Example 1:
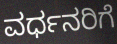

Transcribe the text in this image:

ವರ್ಧನರಿಗೆ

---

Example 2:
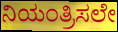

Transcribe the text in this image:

ನಿಯಂತ್ರಿಸಲೇ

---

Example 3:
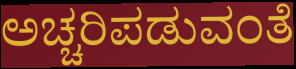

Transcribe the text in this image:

ಅಚ್ಚರಿಪಡುವಂತೆ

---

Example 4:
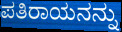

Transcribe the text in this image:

ಪತಿರಾಯನನ್ನು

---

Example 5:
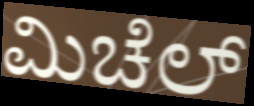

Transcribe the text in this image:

ಮಿಚೆಲ್